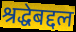
श्रद्धेबद्दल